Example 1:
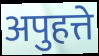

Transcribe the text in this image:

अपुहत्ते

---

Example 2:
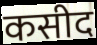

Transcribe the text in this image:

कसीद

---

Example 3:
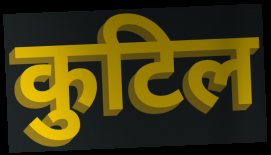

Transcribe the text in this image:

कुटिल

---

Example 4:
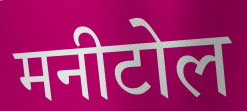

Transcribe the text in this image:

मनीटोल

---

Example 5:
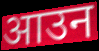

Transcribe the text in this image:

आउन